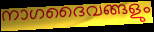
നാഗദൈവങ്ങളും